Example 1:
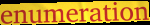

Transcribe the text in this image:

enumeration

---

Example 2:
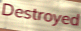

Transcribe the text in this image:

Destroyed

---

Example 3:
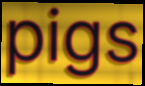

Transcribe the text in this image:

pigs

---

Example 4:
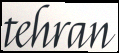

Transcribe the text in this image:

tehran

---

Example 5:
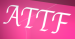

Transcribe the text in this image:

ATTF